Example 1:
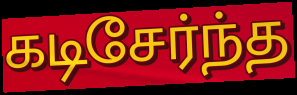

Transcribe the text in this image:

கடிசேர்ந்த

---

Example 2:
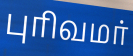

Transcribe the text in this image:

புரிவமர்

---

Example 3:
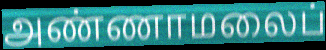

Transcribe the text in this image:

அண்ணாமலைப்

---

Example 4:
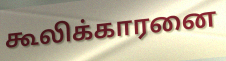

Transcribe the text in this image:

கூலிக்காரனை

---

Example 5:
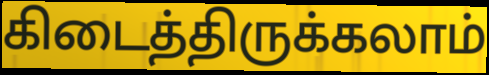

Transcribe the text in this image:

கிடைத்திருக்கலாம்